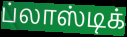
ப்லாஸ்டிக்